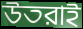
উতরাই